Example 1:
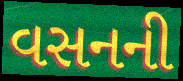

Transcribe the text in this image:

વસનની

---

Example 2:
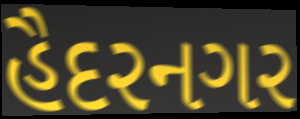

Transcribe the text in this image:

હૈદરનગર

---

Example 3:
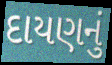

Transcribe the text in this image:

દાયણનું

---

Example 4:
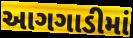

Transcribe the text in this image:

આગગાડીમાં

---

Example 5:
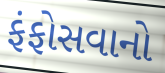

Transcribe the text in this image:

ફંફોસવાનો